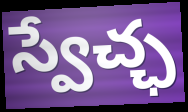
స్వేచ్ఛ